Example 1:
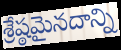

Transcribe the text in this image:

శ్రేష్ఠమైనదాన్ని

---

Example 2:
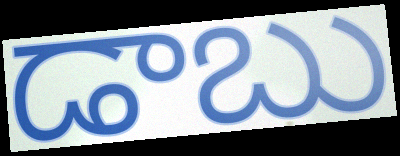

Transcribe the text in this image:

డాబు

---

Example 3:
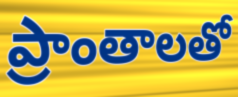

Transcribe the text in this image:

ప్రాంతాలతో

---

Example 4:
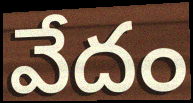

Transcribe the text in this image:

వేదం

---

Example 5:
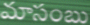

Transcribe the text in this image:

మాసంబు